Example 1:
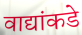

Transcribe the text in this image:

वाद्यांकडे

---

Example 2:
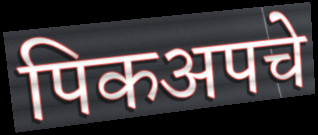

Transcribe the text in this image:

पिकअपचे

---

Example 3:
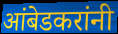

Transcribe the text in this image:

आंबेडकरांनी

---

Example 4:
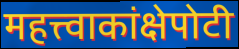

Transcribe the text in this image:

महत्त्वाकांक्षेपोटी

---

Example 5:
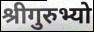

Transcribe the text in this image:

श्रीगुरुभ्यो